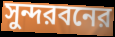
সুন্দরবনের